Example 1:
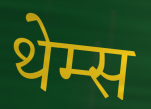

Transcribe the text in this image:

थेम्स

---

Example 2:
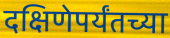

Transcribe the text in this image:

दक्षिणेपर्यंतच्या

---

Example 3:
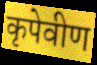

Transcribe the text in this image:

कृपेवीण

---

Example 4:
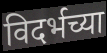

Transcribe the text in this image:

विदर्भच्या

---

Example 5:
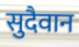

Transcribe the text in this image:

सुदैवान